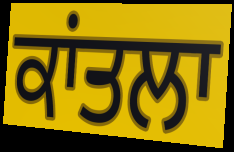
ਕਾਂਤਲਾ